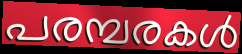
പരമ്പരകൾ